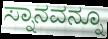
ಸ್ನಾನವನ್ನೂ